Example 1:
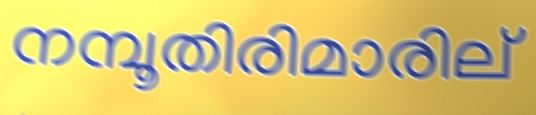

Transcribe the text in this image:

നമ്പൂതിരിമാരില്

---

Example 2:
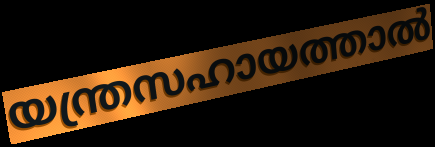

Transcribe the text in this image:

യന്ത്രസഹായത്താൽ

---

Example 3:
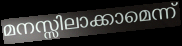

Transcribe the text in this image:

മനസ്സിലാക്കാമെന്ന്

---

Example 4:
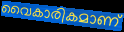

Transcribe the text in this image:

വൈകാരികമാണ്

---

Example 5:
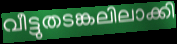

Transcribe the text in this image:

വീട്ടുതടങ്കലിലാക്കി